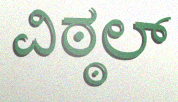
ವಿಠ್ಠಲ್